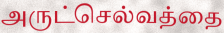
அருட்செல்வத்தை